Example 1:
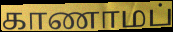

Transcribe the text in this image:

காணாமப்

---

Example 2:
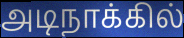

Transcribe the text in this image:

அடிநாக்கில்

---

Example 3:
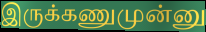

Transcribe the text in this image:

இருக்கணுமுன்னு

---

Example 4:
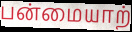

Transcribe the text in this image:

பன்மையாற்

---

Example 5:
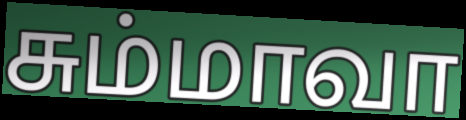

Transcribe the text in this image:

சும்மாவா